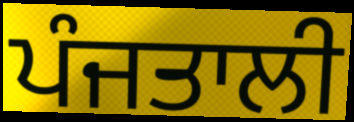
ਪੰਜਤਾਲੀ